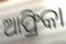
ଆଫ୍ରିକା